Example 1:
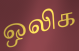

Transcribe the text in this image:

ஒலிக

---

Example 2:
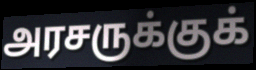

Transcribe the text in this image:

அரசருக்குக்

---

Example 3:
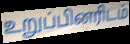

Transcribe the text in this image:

உறுப்பினரிடம்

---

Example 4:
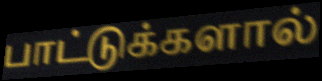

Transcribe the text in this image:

பாட்டுக்களால்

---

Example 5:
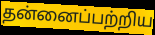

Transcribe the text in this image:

தன்னைப்பற்றிய